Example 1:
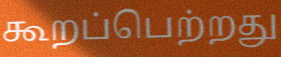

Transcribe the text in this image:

கூறப்பெற்றது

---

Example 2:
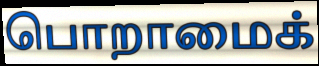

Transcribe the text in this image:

பொறாமைக்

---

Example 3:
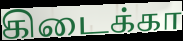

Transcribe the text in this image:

கிடைக்கா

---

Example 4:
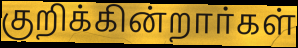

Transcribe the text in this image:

குறிக்கின்றார்கள்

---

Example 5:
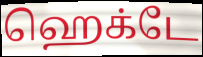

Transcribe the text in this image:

ஹெக்டே